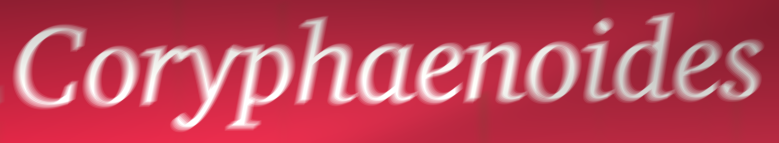
Coryphaenoides